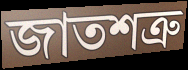
জাতশত্রু